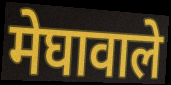
मेघावाले